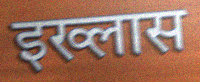
इख्लास